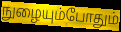
நுழையும்போதும்